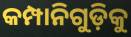
କମ୍ପାନିଗୁଡ଼ିକୁ